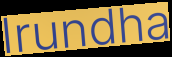
Irundha